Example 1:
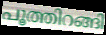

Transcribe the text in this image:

പൂത്തിറങ്ങി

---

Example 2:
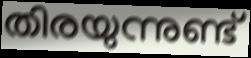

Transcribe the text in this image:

തിരയുന്നുണ്ട്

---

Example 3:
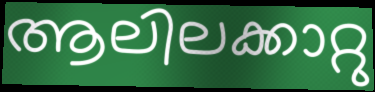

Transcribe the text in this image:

ആലിലക്കാറ്റു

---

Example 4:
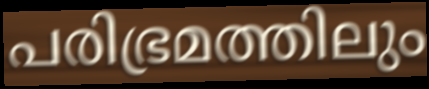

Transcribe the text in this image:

പരിഭ്രമത്തിലും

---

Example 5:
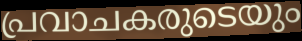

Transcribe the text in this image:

പ്രവാചകരുടെയും